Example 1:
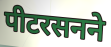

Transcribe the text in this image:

पीटरसनने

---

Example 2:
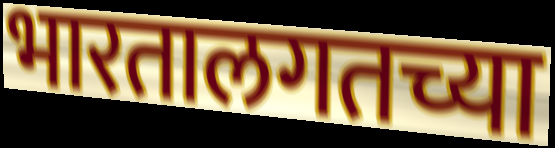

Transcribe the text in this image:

भारतालगतच्या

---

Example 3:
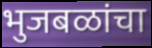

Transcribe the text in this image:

भुजबळांचा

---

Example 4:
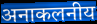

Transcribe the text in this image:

अनाकलनीय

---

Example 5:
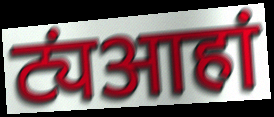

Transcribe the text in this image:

ट्यंआहां